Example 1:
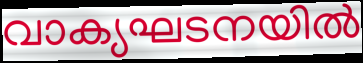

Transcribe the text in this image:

വാക്യഘടനയിൽ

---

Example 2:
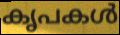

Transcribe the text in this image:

കൃപകൾ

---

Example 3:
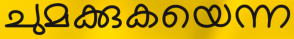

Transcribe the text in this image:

ചുമക്കുകയെന്ന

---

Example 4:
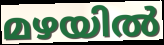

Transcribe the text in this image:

മഴയിൽ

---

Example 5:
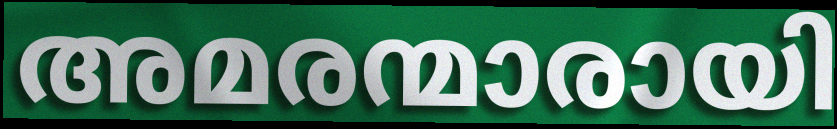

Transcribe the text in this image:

അമരന്മാരായി